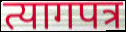
त्यागपत्र